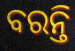
ବରନ୍ତି